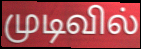
முடிவில்